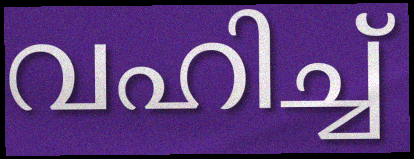
വഹിച്ച്